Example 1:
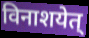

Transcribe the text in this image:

विनाशयेत्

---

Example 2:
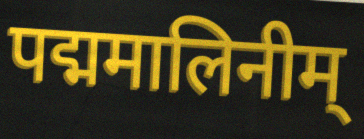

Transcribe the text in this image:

पद्ममालिनीम्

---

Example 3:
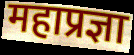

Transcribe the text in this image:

महाप्रज्ञा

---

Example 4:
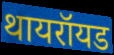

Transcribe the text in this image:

थायरॉयड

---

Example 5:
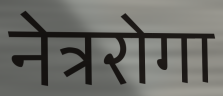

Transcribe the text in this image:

नेत्ररोगा